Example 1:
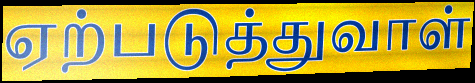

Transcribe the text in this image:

ஏற்படுத்துவாள்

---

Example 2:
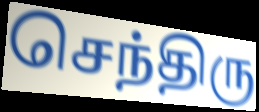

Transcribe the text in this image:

செந்திரு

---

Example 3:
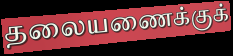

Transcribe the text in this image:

தலையணைக்குக்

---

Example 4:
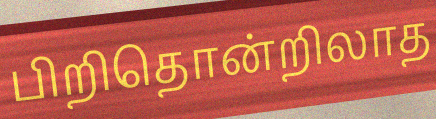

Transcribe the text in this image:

பிறிதொன்றிலாத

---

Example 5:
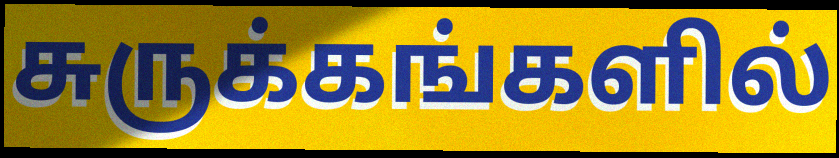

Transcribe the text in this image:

சுருக்கங்களில்